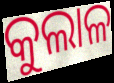
କୁଲାଳ